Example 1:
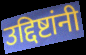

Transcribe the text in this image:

उद्दिष्टांनी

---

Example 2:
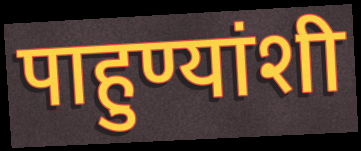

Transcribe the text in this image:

पाहुण्यांशी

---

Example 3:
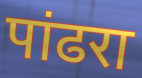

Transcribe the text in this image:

पांढरा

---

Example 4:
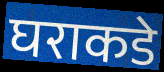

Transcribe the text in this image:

घराकडे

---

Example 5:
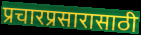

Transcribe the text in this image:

प्रचारप्रसारासाठी